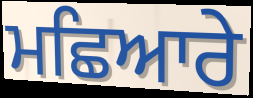
ਮਛਿਆਰੇ